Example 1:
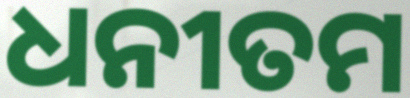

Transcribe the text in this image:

ଧନୀତମ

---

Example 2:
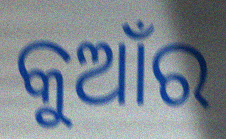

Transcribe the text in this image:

କୁଆଁର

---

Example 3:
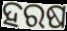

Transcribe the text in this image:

ହରଷ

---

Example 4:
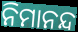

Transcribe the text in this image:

ନିମାନନ୍ଦ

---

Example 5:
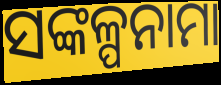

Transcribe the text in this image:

ସଙ୍କଳ୍ପନାମା